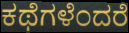
ಕಥೆಗಳೆಂದರೆ